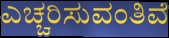
ಎಚ್ಚರಿಸುವಂತಿವೆ